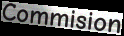
Commision